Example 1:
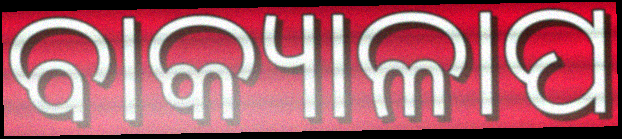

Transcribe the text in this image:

ବାକ୍ୟାଳାପ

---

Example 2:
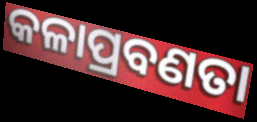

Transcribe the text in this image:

କଳାପ୍ରବଣତା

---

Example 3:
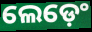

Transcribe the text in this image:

ଲେଡ଼େଂ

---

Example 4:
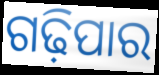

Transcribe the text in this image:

ଗଢ଼ିପାର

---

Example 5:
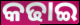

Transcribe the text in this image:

କଢାଇ